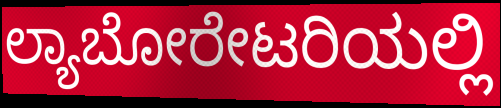
ಲ್ಯಾಬೋರೇಟರಿಯಲ್ಲಿ